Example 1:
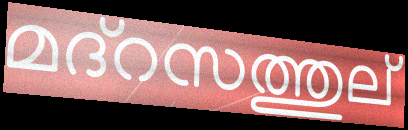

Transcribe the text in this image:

മദ്റസത്തുല്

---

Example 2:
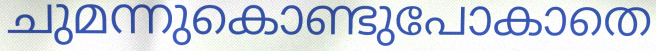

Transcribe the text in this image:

ചുമന്നുകൊണ്ടുപോകാതെ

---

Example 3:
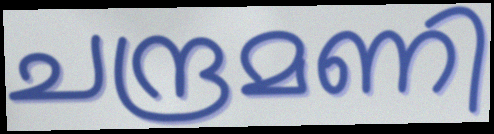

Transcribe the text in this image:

ചന്ദ്രമണി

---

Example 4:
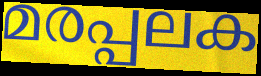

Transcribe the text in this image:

മരപ്പലക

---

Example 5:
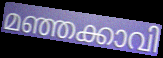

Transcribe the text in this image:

മഞ്ഞക്കാവി